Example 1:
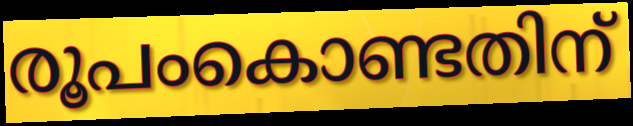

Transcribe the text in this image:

രൂപംകൊണ്ടതിന്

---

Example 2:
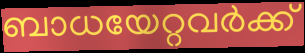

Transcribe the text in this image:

ബാധയേറ്റവർക്ക്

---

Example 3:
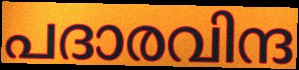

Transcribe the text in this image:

പദാരവിന്ദ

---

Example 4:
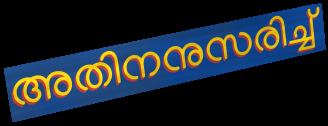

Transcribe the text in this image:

അതിനനുസരിച്ച്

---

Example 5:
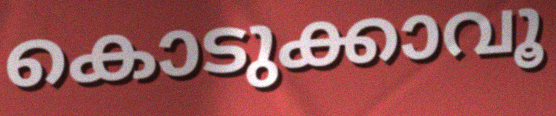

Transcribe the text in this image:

കൊടുക്കാവൂ